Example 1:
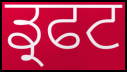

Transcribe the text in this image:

ਡ੍ਰਫਟ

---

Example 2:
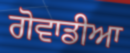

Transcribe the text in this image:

ਗੋਵਾਡੀਆ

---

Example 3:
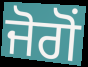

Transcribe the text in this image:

ਜੋਗੋਂ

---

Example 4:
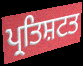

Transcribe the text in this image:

ਪ੍ਰਤਿਸ਼ਟਤ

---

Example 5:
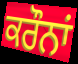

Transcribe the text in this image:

ਕਰੌਨਾਂ